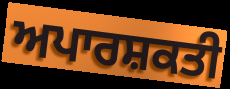
ਅਪਾਰਸ਼ਕਤੀ